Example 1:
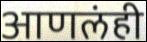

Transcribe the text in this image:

आणलंही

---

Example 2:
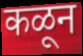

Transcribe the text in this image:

कळून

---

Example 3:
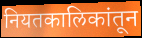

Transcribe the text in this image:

नियतकालिकांतून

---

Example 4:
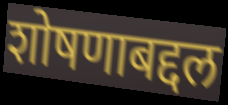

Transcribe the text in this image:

शोषणाबद्दल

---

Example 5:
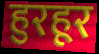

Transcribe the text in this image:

हुरहूर